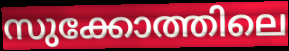
സുക്കോത്തിലെ